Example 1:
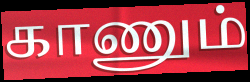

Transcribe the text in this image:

காணும்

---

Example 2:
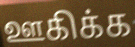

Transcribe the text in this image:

ஊகிக்க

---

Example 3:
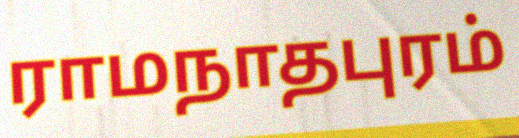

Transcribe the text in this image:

ராமநாதபுரம்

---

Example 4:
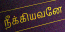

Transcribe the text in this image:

நீக்கியவனே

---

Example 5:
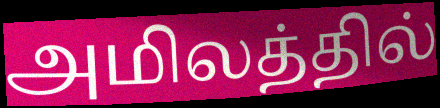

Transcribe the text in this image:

அமிலத்தில்